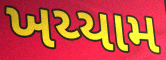
ખય્યામ